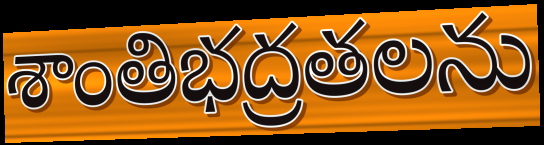
శాంతిభద్రతలను